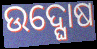
ଉଦ୍ଘୋଷ